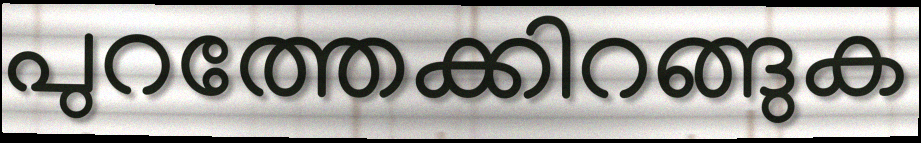
പുറത്തേക്കിറങ്ങുക